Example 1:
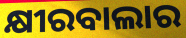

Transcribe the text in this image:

କ୍ଷୀରବାଲାର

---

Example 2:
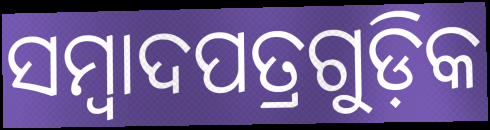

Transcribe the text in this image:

ସମ୍ୱାଦପତ୍ରଗୁଡ଼ିକ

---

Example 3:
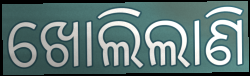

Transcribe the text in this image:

ଖୋଲିଲାଣି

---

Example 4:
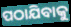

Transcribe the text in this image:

ପଠାଯିବାକୁ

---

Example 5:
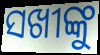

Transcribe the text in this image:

ସଖୀଙ୍କୁ